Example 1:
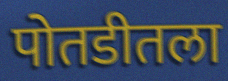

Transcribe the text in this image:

पोतडीतला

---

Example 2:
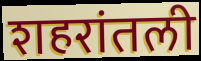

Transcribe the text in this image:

शहरांतली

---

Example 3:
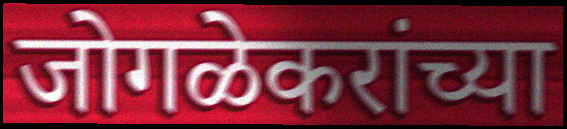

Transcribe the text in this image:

जोगळेकरांच्या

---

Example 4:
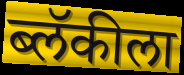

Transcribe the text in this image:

ब्लॅकीला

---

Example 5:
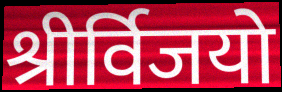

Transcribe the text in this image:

श्रीर्विजयो